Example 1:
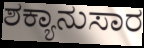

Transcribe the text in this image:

ಶಕ್ಯಾನುಸಾರ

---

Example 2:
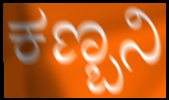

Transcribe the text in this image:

ಕಣ್ಬನಿ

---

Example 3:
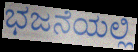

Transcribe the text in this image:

ಭಜನೆಯಲ್ಲಿ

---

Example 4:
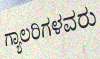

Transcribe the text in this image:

ಗ್ಯಾಲರಿಗಳವರು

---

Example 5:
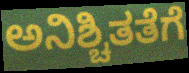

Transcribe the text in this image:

ಅನಿಶ್ಚಿತತೆಗೆ